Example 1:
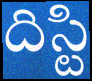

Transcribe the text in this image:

దిస్టి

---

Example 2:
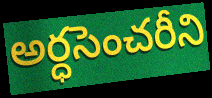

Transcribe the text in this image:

అర్ధసెంచరీని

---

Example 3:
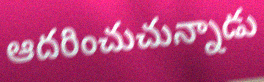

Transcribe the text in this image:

ఆదరించుచున్నాడు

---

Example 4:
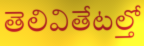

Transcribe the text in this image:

తెలివితేటల్తో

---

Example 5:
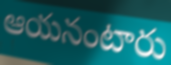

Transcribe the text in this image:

ఆయనంటారు